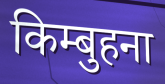
किम्बुहना